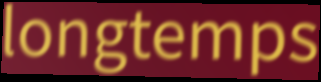
longtemps